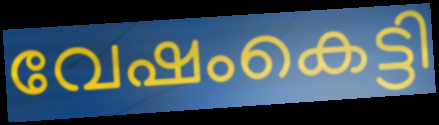
വേഷംകെട്ടി